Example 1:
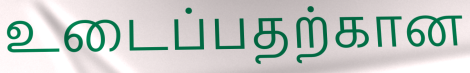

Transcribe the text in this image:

உடைப்பதற்கான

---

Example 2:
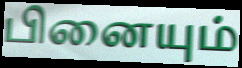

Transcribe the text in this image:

பினையும்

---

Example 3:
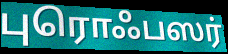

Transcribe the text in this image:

புரொஃபஸர்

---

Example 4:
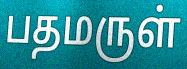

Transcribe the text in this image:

பதமருள்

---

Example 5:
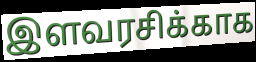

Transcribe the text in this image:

இளவரசிக்காக